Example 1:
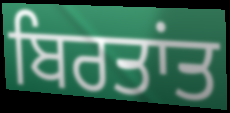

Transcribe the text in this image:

ਬਿਰਤਾਂਤ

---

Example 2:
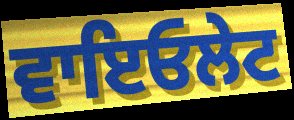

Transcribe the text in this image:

ਵਾਇਓਲੇਟ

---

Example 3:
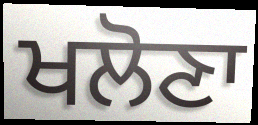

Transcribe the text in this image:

ਖਲੋਣਾ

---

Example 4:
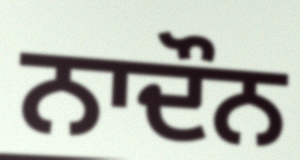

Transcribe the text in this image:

ਨਾਦੌਨ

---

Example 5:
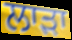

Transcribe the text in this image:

ਲਾੜਾ